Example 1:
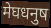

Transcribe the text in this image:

मेघधनुष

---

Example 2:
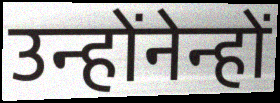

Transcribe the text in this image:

उन्होंनेन्हों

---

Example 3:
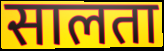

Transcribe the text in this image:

सालता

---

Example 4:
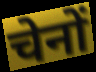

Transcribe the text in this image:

चेनों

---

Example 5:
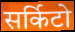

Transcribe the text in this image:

सर्किटो